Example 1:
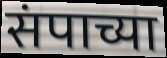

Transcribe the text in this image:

संपाच्या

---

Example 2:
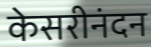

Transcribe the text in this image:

केसरीनंदन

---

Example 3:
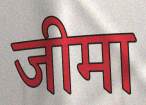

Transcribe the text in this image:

जीमा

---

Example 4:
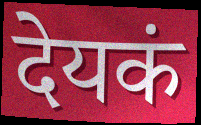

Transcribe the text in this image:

देयकं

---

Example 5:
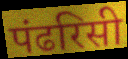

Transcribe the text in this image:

पंढरिसी